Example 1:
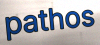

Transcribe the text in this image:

pathos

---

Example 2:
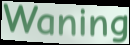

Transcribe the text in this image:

Waning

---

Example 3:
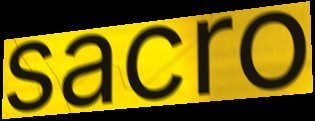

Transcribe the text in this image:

sacro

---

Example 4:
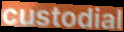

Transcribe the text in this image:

custodial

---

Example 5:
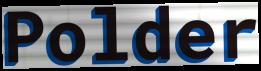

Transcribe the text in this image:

Polder